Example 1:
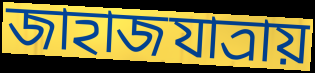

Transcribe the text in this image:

জাহাজযাত্রায়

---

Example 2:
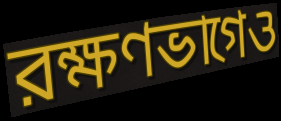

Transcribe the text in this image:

রক্ষণভাগেও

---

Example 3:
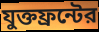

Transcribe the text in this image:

যুক্তফ্রন্টের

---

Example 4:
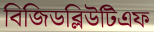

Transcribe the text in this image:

বিজিডব্লিউটিএফ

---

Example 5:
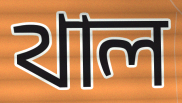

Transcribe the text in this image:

থাল